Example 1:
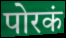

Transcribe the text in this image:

पोरकं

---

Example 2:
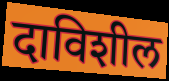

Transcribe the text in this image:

दाविशील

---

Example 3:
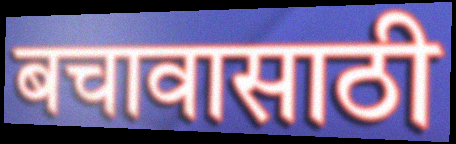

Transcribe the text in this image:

बचावासाठी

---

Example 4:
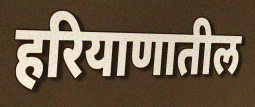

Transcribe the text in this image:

हरियाणातील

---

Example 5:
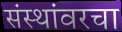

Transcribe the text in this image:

संस्थांवरचा